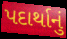
પદાર્થાનું